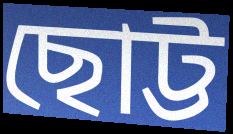
ছোট্ট